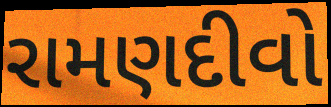
રામણદીવો